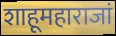
शाहूमहाराजां